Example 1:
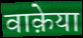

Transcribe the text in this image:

वाक़ेया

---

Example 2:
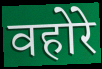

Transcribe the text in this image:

वहोरे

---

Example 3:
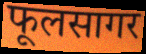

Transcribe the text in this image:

फूलसागर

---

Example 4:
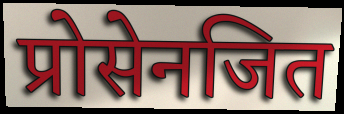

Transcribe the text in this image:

प्रोसेनजित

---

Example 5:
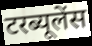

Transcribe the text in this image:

टरब्यूलेंस